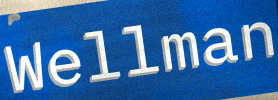
Wellman